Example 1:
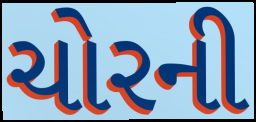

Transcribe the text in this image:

ચોરની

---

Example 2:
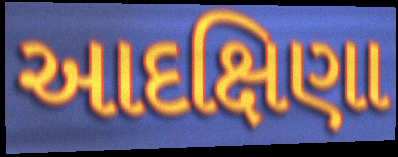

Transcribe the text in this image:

આદક્ષિણા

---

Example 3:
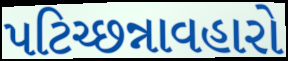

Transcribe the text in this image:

પટિચ્છન્નાવહારો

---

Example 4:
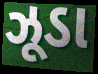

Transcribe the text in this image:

ઝૂડા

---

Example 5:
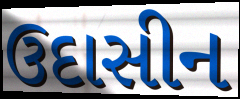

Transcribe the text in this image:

ઉદાસીન